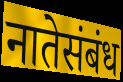
नातेसंबंध